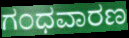
ಗಂಧವಾರಣ